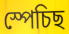
স্পেচিছ